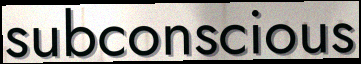
subconscious